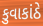
કુવાકાંઠે